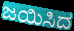
ಜಯಿಸಿದ